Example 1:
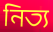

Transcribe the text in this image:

নিত্য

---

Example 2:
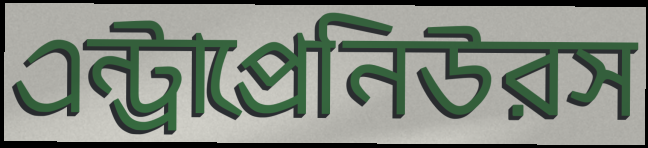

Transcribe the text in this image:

এন্ট্রাপ্রেনিউরস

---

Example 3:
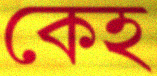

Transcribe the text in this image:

কেহ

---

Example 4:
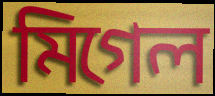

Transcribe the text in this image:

মিগেল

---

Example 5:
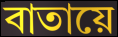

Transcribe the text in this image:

বাতায়ে